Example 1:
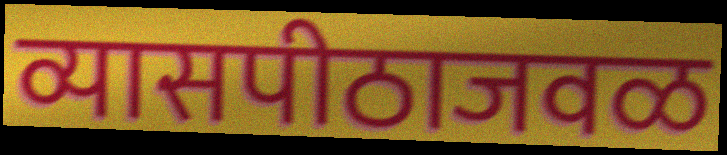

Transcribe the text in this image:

व्यासपीठाजवळ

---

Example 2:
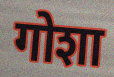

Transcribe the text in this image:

गोशा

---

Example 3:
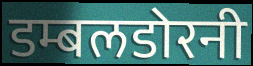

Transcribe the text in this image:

डम्बलडोरनी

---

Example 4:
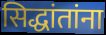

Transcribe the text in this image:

सिद्धांतांना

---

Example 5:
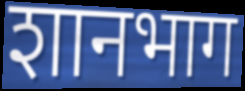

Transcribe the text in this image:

शानभाग